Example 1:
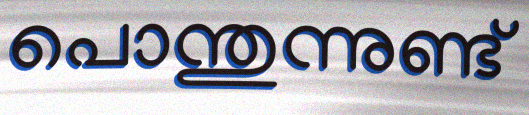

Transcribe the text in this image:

പൊന്തുന്നുണ്ട്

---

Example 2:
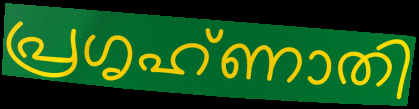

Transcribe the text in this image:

പ്രഗൃഹ്ണാതി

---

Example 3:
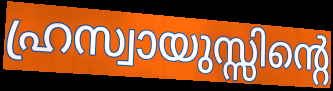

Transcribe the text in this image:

ഹ്രസ്വായുസ്സിന്റെ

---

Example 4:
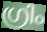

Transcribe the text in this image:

ഗ്രിം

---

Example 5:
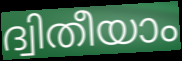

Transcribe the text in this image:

ദ്വിതീയാം